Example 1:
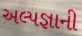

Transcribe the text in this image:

અલ્પજ્ઞાની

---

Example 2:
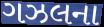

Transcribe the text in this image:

ગઝલના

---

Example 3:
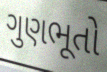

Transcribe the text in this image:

ગુણભૂતો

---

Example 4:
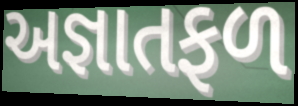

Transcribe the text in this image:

અજ્ઞાતફળ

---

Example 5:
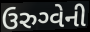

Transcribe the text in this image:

ઉરુગ્વેની